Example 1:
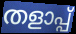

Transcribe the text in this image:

തളാപ്പ്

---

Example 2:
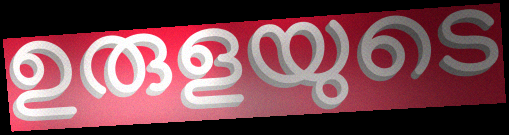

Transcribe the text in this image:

ഉരുളയുടെ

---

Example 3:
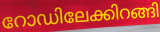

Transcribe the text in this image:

റോഡിലേക്കിറങ്ങി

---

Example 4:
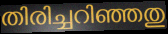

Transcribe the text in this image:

തിരിച്ചറിഞ്ഞതു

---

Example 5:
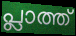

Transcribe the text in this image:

പ്ലാത്ത്